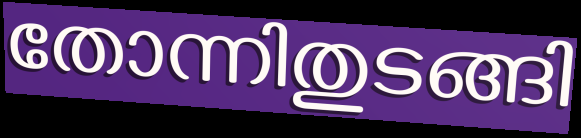
തോന്നിതുടങ്ങി